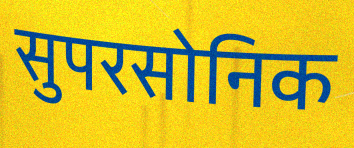
सुपरसोनिक